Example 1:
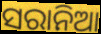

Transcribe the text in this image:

ସରାନିଆ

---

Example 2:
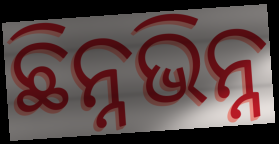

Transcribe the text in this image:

ଛିନ୍ନଭିନ୍ନ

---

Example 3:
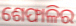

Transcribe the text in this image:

ଶେଫାଳିର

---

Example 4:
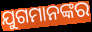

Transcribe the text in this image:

ଯୁଗମାନଙ୍କର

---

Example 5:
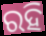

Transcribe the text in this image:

ରହି